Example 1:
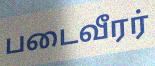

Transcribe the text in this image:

படைவீரர்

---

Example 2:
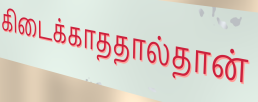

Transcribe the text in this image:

கிடைக்காததால்தான்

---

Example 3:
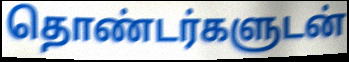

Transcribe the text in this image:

தொண்டர்களுடன்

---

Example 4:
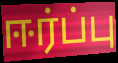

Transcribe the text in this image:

ஈர்ப்பு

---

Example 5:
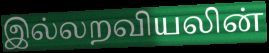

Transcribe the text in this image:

இல்லறவியலின்